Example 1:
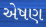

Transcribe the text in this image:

એષણ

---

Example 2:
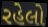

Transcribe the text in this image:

રહેલો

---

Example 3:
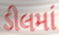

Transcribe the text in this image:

ડીલમાં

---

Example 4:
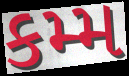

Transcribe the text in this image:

કમ્મ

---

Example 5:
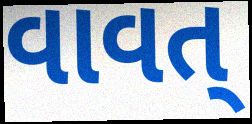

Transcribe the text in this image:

વાવત્